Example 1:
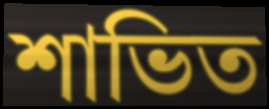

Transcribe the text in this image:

শাভিত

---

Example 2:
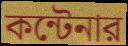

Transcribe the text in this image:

কন্টেনার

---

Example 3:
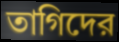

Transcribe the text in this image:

তাগিদের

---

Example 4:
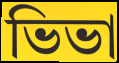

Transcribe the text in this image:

ভিভা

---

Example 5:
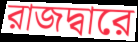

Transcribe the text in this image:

রাজদ্বারে